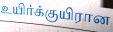
உயிர்க்குயிரான